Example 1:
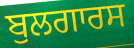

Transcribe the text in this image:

ਬੁਲਗਾਰਸ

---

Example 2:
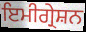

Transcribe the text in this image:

ਇਮੀਗ੍ਰੇਸ਼ਨ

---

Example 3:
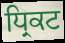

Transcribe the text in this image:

ਧ੍ਰਿਕਟ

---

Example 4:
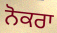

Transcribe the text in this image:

ਨੋਕਰਾ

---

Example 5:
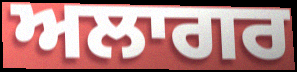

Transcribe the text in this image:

ਅਲਾਗਰ